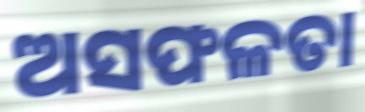
ଅସଫଳତା